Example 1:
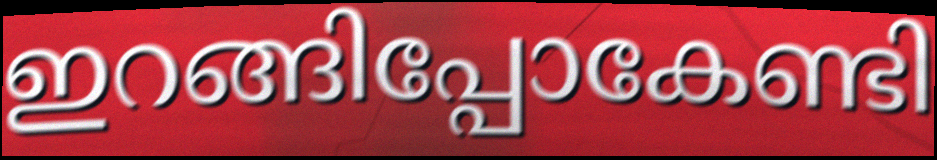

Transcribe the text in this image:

ഇറങ്ങിപ്പോകേണ്ടി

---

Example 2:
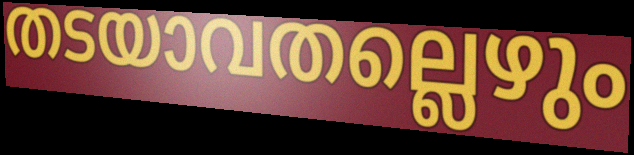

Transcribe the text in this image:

തടയാവതല്ലെഴും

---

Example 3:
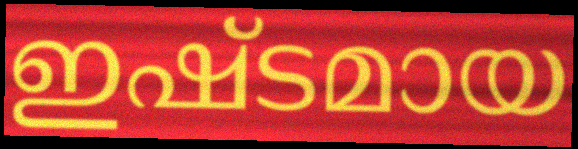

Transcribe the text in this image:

ഇഷ്ടമായ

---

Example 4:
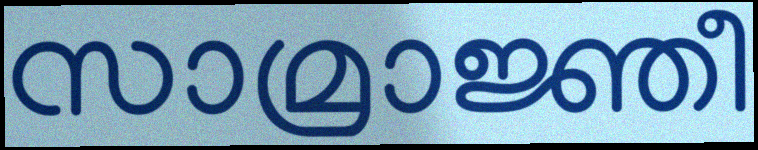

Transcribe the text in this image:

സാമ്രാജ്ഞീ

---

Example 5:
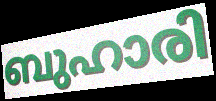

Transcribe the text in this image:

ബുഹാരി